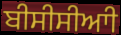
ਬੀਸੀਸੀਆੀ